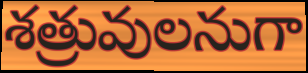
శత్రువులనుగా